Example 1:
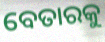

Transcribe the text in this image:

ବେତାରକୁ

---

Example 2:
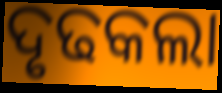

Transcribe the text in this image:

ଦୃଢକଲା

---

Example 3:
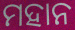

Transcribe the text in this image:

ମହାନ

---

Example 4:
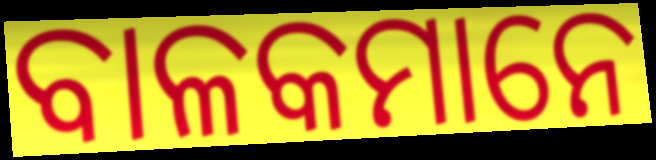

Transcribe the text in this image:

ବାଳକମାନେ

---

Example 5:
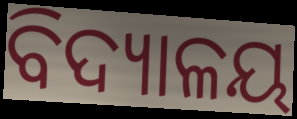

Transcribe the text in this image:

ବିଦ୍ଯାଳୟ